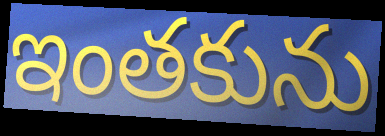
ఇంతకును